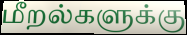
மீறல்களுக்கு